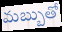
మబ్బుతో